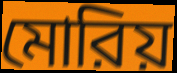
মোরিয়